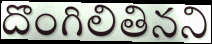
దొంగిలితినని